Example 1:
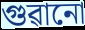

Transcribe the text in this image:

গুৱানো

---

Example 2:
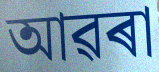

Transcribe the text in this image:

আৱৰা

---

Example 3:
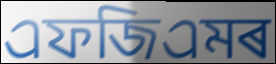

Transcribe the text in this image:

এফজিএমৰ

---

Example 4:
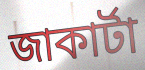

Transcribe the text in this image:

জাকাৰ্টা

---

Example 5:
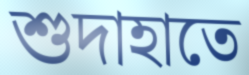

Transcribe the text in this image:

শুদাহাতে